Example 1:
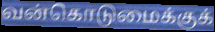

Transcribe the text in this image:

வன்கொடுமைக்குக்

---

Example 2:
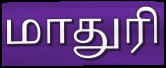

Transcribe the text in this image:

மாதுரி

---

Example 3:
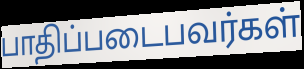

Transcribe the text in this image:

பாதிப்படைபவர்கள்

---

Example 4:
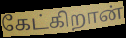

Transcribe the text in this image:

கேட்கிறான்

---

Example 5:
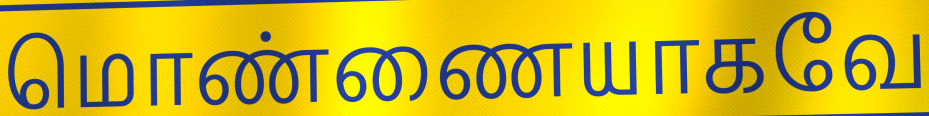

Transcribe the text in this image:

மொண்ணையாகவே